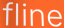
fline